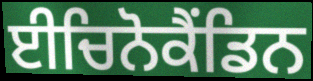
ਈਚਿਨੋਕੈਂਡਿਨ